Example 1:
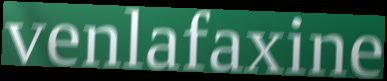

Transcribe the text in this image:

venlafaxine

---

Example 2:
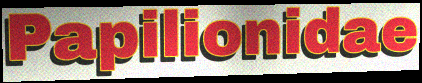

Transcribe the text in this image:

Papilionidae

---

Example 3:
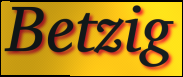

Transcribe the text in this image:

Betzig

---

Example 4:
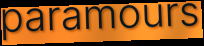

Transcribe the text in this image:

paramours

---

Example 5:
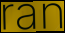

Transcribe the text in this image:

ran